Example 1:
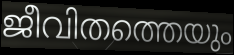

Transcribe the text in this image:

ജീവിതത്തെയും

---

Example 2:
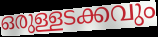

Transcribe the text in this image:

ഒരുള്ളടക്കവും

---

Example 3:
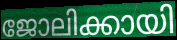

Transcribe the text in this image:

ജോലിക്കായി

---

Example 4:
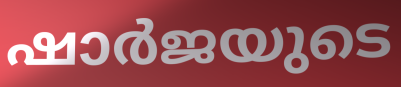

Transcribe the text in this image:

ഷാർജയുടെ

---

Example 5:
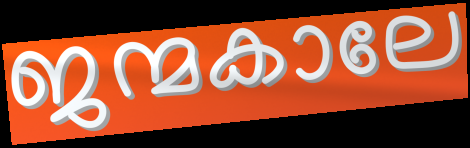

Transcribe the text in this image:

ജന്മകാലേ